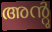
അന്റു